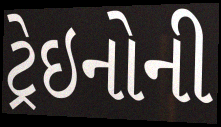
ટ્રેઇનોની